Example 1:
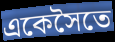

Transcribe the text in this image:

একেসৈতে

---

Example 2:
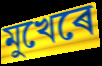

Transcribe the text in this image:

মুখেৰে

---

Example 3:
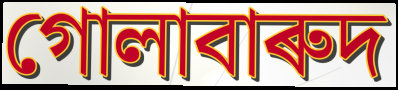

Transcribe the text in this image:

গোলাবাৰুদ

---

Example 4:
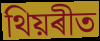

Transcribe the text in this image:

থিয়ৰীত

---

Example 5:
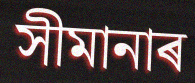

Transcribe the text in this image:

সীমানাৰ